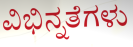
ವಿಭಿನ್ನತೆಗಳು